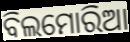
ବିଲମୋରିଆ